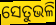
ସେତୁଭଳି